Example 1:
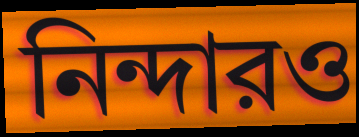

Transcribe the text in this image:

নিন্দারও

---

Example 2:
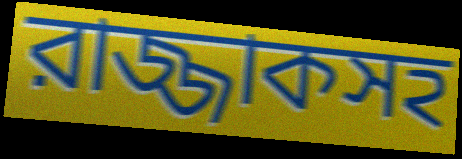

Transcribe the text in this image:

রাজ্জাকসহ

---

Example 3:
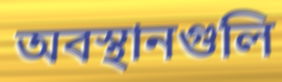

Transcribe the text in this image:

অবস্থানগুলি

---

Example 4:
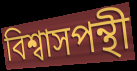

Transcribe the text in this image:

বিশ্বাসপন্থী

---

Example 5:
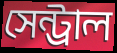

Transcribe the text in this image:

সেন্ট্রাল